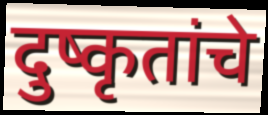
दुष्कृतांचे